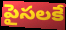
పైసలకే